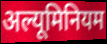
अल्यूमिनियम